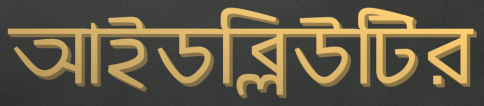
আইডব্লিউটির